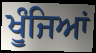
ਖੂੰਜਿਆਂ